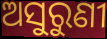
ଅସୁରୁଣୀ